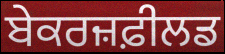
ਬੇਕਰਜ਼ਫ਼ੀਲਡ